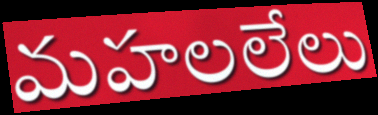
మహలలేలు